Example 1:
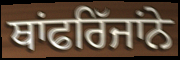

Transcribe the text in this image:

ਥਾਂਫਰਿੱਜਾਂਨੇ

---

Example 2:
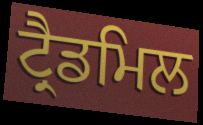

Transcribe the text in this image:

ਟ੍ਰੈਡਮਿਲ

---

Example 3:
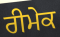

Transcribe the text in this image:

ਰੀਮੇਕ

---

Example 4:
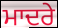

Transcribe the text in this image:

ਮਾਦਰੇ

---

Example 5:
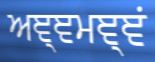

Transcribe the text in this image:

ਅਞ੍ਞਮਞ੍ਞਂ